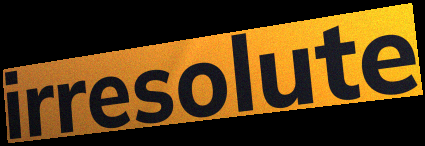
irresolute